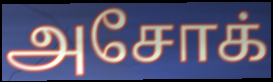
அசோக்